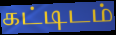
கட்டிடம்